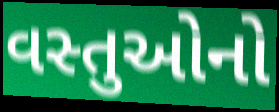
વસ્તુઓનો